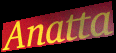
Anatta